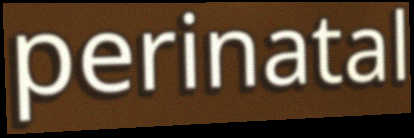
perinatal